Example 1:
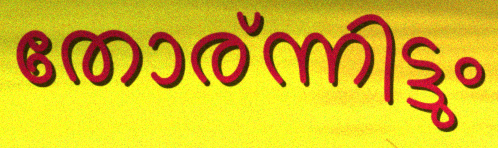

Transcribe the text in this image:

തോര്ന്നിട്ടും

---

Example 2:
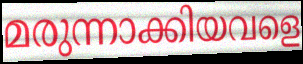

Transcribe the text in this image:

മരുന്നാക്കിയവളെ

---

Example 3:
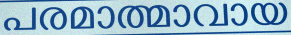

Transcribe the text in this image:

പരമാത്മാവായ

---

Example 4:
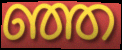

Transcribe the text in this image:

ഞ്ഞ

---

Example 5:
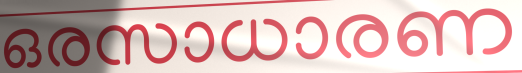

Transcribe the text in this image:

ഒരസാധാരണ